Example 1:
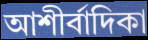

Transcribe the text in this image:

আশীর্বাদিকা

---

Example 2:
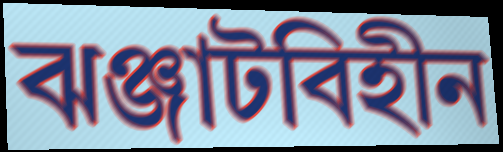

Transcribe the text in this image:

ঝঞ্জাটবিহীন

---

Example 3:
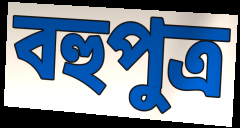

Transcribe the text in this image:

বহুপুত্র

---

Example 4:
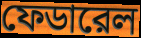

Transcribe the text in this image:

ফেডারেল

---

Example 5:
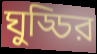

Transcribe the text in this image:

ঘুড্ডির